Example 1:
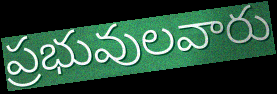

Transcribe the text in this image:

ప్రభువులవారు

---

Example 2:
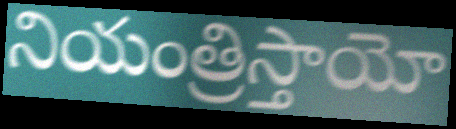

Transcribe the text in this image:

నియంత్రిస్తాయో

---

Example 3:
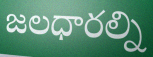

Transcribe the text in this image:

జలధారల్ని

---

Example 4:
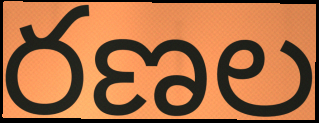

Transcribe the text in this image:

రణల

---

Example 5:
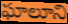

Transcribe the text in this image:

ఘాలూని